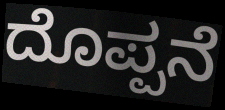
ದೊಪ್ಪನೆ